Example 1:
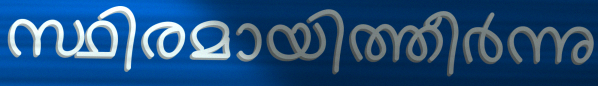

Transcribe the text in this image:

സ്ഥിരമായിത്തീർന്നു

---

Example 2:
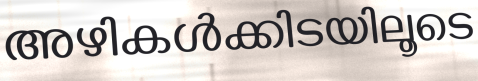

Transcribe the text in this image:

അഴികൾക്കിടയിലൂടെ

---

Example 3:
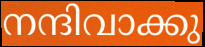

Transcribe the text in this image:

നന്ദിവാക്കു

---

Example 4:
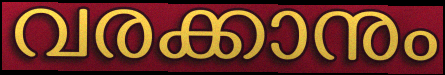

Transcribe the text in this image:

വരക്കാനും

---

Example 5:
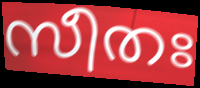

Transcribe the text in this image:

സീതഃ